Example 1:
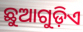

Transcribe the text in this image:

ଛୁଆଗୁଡ଼ିଏ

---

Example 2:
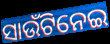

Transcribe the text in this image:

ସାଉଁଟିନେଇ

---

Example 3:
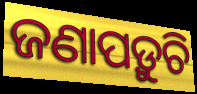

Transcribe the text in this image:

ଜଣାପଡ଼ୁଚି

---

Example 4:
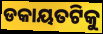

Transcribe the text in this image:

ଡକାୟତଟିକୁ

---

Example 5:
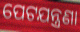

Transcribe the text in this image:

ପେଟଯନ୍ତ୍ରଣା